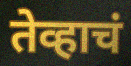
तेव्हाचं